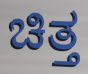
ಚಿತ್ತ